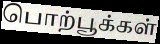
பொற்பூக்கள்